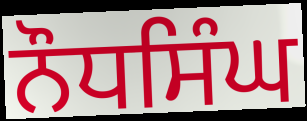
ਨੌਧਸਿੰਘ